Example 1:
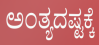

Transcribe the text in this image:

ಅಂತ್ಯದಷ್ಟಕ್ಕೆ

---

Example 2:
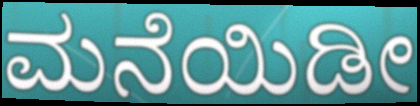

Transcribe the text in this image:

ಮನೆಯಿಡೀ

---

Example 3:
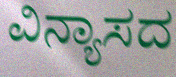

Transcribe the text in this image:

ವಿನ್ಯಾಸದ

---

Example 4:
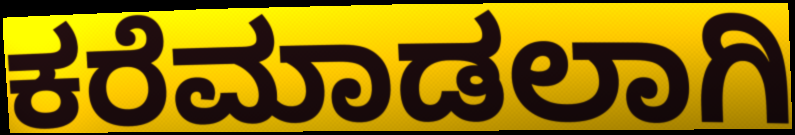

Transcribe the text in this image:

ಕರೆಮಾಡಲಾಗಿ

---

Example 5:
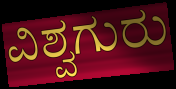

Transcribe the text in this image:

ವಿಶ್ವಗುರು